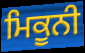
ਮਿਕੂਨੀ